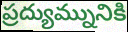
ప్రద్యుమ్నునికి